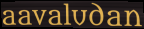
aavaludan